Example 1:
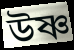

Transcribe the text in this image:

উষ্ণ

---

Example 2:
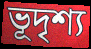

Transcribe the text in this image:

ভূদৃশ্য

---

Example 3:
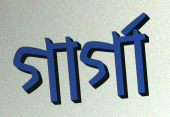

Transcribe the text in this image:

গার্গা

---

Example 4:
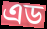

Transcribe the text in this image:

এড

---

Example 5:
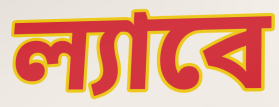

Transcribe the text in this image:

ল্যাবে